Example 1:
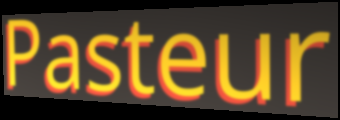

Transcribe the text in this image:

Pasteur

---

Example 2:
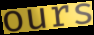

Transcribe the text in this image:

ours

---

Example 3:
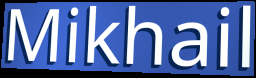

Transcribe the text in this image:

Mikhail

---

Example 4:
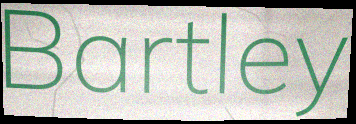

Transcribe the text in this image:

Bartley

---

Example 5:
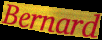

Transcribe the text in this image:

Bernard